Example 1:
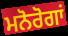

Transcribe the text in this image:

ਮਨੋਰੋਗਾਂ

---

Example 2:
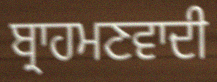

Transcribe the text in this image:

ਬ੍ਰਾਹਮਣਵਾਦੀ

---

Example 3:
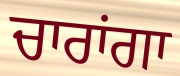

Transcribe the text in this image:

ਚਾਰਾਂਗਾ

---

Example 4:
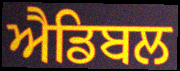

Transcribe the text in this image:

ਐਡਿਬਲ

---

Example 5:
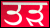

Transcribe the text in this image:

ਤੜ